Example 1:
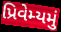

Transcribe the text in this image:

પ્રિવેમ્યમું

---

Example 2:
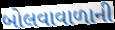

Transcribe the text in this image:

બોલવાવાળાની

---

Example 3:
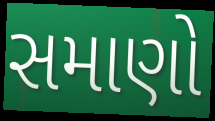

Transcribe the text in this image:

સમાણો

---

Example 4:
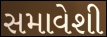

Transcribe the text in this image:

સમાવેશી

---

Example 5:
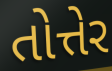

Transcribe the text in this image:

તોત્તેર